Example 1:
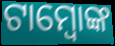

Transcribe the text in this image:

ଟାମ୍ବୋଙ୍କ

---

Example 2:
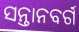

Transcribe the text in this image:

ସନ୍ତାନବର୍ଗ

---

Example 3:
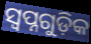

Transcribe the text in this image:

ସ୍ୱପ୍ନଗୁଡ଼ିକ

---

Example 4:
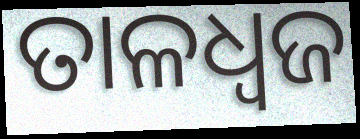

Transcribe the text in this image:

ତାଳଧ୍ୱଜ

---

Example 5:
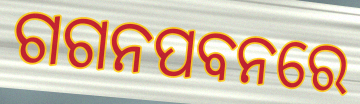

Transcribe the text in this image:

ଗଗନପବନରେ